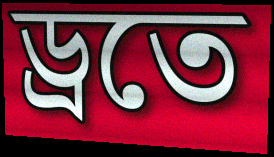
ড্রতে